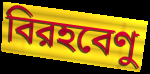
বিরহবেণু